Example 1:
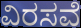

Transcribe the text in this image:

ವಿರಸವೆ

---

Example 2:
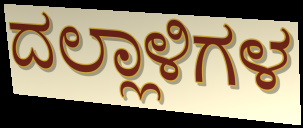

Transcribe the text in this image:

ದಲ್ಲಾಳಿಗಳ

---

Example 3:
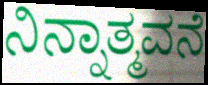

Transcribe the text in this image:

ನಿನ್ನಾತ್ಮವನೆ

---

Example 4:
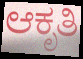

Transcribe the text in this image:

ಆಕೃತಿ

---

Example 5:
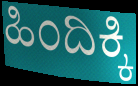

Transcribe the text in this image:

ಹಿಂದಿಕ್ಕಿ